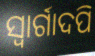
ସ୍ୱାର୍ଗାଦପି